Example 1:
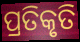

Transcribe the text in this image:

ପ୍ରତିକୃତି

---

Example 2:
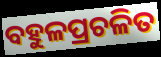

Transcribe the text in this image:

ବହୁଳପ୍ରଚଳିତ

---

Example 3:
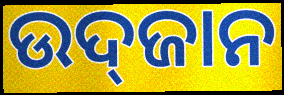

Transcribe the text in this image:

ଉଦ୍‌ଜାନ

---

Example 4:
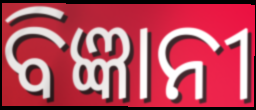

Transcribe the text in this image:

ବିଜ୍ଞାନୀ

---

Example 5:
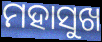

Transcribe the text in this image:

ମହାସୁଖ